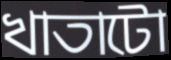
খাতাটো